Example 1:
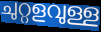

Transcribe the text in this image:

ചുറ്റളവുള്ള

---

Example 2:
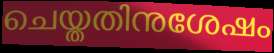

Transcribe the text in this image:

ചെയ്തതിനുശേഷം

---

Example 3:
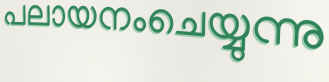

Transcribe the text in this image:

പലായനംചെയ്യുന്നു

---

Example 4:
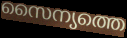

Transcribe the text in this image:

സൈന്യത്തെ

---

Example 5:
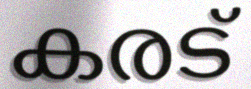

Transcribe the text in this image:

കരട്